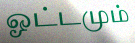
ஓட்டமும்